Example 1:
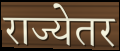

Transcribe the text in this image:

राज्येतर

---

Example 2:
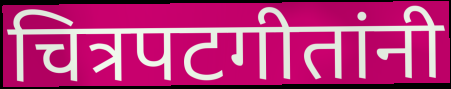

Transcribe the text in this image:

चित्रपटगीतांनी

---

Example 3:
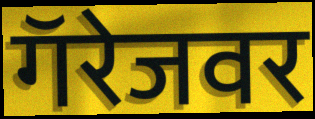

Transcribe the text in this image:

गॅरेजवर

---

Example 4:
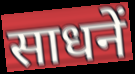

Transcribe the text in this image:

साधनें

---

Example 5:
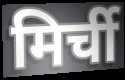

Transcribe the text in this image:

मिर्ची